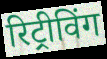
रिट्रीविंग